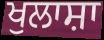
ਖੁਲਾਸ਼ਾ